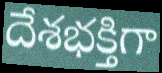
దేశభక్తిగా